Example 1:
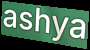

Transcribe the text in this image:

ashya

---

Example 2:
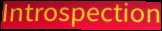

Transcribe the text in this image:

Introspection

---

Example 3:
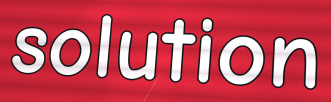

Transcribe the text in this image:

solution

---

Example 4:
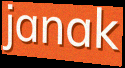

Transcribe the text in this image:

janak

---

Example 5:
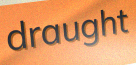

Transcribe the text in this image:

draught